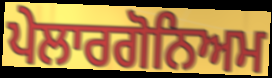
ਪੇਲਾਰਗੋਨਿਅਮ